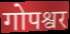
गोपश्वर